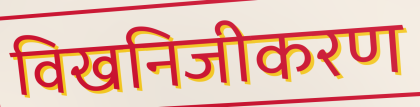
विखनिजीकरण